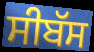
ਸੀਬੱਸ